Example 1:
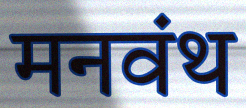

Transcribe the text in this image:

मनवंथ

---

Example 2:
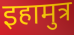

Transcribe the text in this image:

इहामुत्र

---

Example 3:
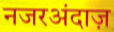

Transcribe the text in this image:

नजरअंदाज़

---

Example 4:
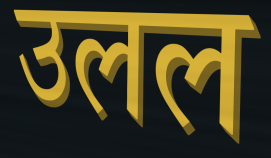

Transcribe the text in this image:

उलल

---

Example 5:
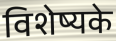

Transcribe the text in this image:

विशेष्यके